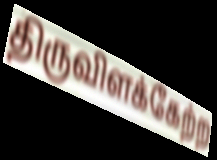
திருவிளக்கேற்ற